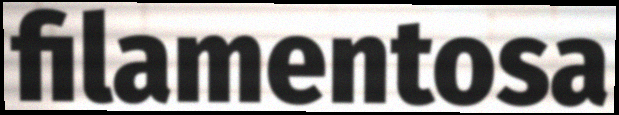
filamentosa